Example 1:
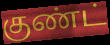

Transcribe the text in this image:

குண்ட்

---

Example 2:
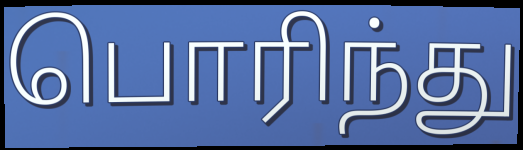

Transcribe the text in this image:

பொரிந்து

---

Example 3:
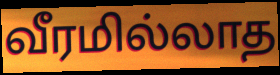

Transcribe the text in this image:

வீரமில்லாத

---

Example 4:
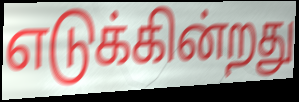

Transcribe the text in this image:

எடுக்கின்றது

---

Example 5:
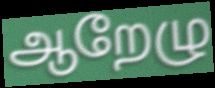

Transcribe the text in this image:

ஆறேழு